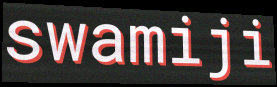
swamiji